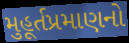
મુહૂર્તપ્રમાણનો